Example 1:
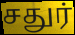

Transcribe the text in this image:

சதுர்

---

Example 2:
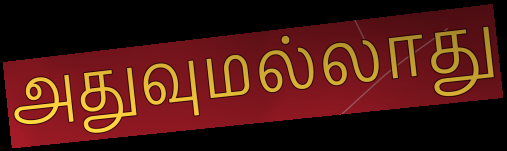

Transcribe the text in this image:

அதுவுமல்லாது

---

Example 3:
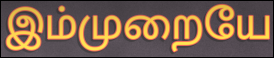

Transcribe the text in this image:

இம்முறையே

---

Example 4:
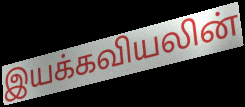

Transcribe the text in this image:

இயக்கவியலின்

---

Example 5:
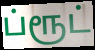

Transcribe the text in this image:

ப்ரூட்